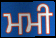
ਮਮੀ